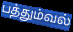
பத்தும்வல்